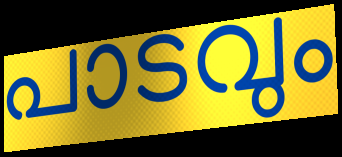
പാടവും